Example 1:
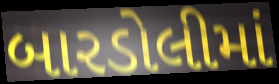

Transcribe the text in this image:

બારડોલીમાં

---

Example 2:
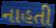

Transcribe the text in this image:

નાહતી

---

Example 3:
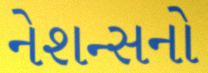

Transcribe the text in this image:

નેશન્સનો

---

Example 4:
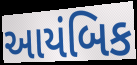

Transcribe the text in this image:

આયંબિક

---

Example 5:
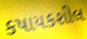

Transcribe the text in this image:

કષાયકશીલ